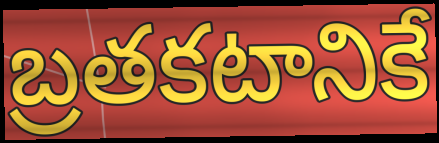
బ్రతకటానికే